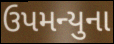
ઉપમન્યુના